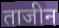
ताजीन